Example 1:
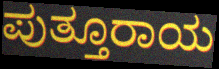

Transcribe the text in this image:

ಪುತ್ತೂರಾಯ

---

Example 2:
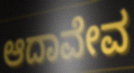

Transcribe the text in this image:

ಆದಾವೇವ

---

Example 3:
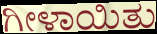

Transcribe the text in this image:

ಗೀಳಾಯಿತು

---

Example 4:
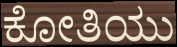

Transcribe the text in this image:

ಕೋತಿಯು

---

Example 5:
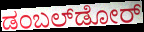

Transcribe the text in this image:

ಡಂಬಲ್‌ಡೋರ್